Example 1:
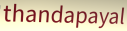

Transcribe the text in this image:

thandapayal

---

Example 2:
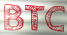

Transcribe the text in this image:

BTC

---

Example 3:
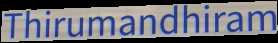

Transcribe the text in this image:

Thirumandhiram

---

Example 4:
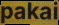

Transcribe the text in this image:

pakai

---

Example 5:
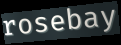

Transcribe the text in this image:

rosebay